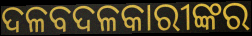
ଦଳବଦଳକାରୀଙ୍କର